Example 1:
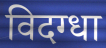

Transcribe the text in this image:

विदग्धा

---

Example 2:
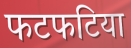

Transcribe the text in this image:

फटफटिया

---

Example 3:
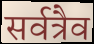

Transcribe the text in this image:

सर्वत्रैव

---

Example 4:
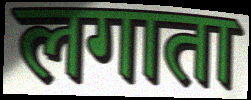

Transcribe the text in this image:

लगाता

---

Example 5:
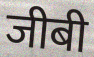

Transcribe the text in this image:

जीबी